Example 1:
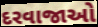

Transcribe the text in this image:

દરવાજાઓ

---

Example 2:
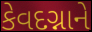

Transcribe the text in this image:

કેવદગ્નાને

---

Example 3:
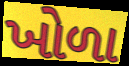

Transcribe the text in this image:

ખોળા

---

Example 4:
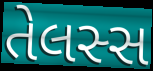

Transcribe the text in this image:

તેલસ્સ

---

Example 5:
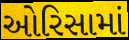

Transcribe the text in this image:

ઓરિસામાં